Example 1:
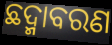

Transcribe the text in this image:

ଛଦ୍ମାବରଣ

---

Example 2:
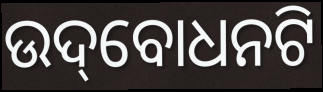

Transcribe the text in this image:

ଉଦ୍‌ବୋଧନଟି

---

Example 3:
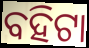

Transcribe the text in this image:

ବହିଟା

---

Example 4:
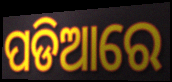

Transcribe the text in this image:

ପଡିଆରେ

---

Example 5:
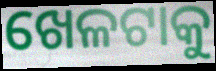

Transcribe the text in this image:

ଖେଳଟାକୁ